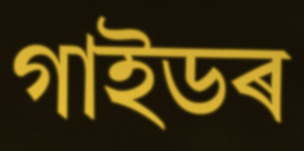
গাইডৰ